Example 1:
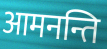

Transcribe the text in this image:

आमनन्ति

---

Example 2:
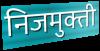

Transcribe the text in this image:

निजमुक्ती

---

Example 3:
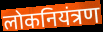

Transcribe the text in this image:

लोकनियंत्रण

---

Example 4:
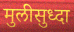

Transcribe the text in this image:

मुलीसुध्दा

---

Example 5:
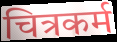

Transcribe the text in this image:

चित्रकर्म